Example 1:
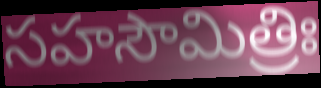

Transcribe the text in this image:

సహసౌమిత్రిః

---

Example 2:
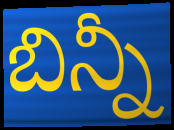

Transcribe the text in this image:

బిన్నీ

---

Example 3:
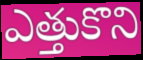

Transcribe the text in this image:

ఎత్తుకొని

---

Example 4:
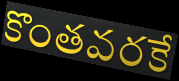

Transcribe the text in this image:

కొంతవరకే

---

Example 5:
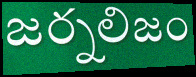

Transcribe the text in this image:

జర్నలిజం